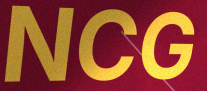
NCG